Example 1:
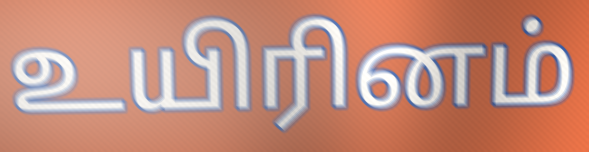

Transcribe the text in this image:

உயிரினம்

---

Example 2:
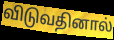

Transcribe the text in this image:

விடுவதினால்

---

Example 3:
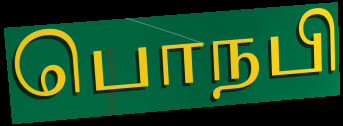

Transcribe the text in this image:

பொநபி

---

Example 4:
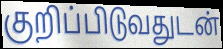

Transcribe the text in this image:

குறிப்பிடுவதுடன்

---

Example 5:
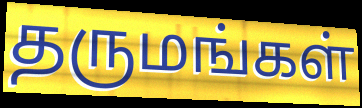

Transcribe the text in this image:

தருமங்கள்